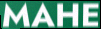
MAHE